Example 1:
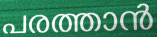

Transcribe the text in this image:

പരത്താൻ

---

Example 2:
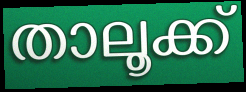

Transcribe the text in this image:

താലൂക്ക്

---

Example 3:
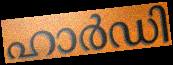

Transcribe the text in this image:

ഹാർഡി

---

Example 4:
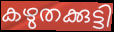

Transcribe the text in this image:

കഴുതക്കുട്ടി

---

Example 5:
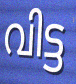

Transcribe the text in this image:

വിട്ട